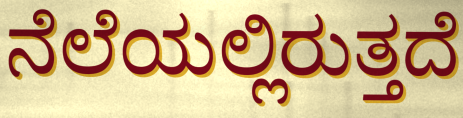
ನೆಲೆಯಲ್ಲಿರುತ್ತದೆ